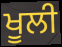
ਖੂਲੀ